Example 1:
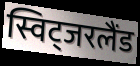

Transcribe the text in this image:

स्विट्जरलैंड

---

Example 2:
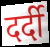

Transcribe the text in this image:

दर्दी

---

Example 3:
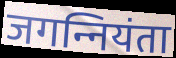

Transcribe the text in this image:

जगन्नियंता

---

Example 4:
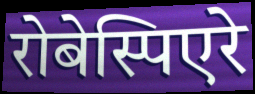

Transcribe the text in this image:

रोबेस्पिएरे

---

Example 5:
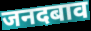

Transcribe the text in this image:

जनदबाव